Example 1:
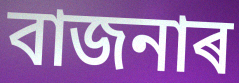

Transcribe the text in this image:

বাজনাৰ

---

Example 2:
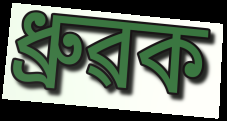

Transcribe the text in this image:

ধ্ৰুৱক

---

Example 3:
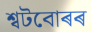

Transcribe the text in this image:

শ্বটবোৰৰ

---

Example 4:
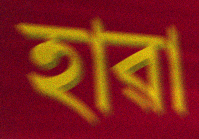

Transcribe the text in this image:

হাৱা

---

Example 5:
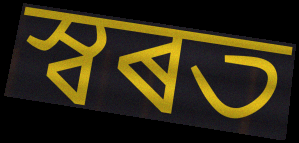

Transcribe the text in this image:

স্বৰত